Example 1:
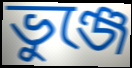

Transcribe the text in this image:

ভুঞ্জে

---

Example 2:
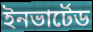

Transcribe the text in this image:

ইনভার্টেড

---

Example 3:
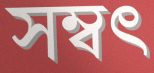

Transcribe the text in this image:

সম্বৎ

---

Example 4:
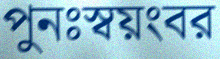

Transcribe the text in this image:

পুনঃস্বয়ংবর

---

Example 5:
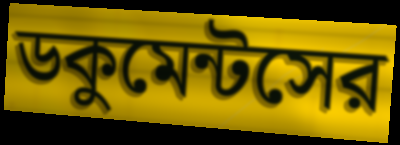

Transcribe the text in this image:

ডকুমেন্টসের